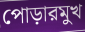
পোড়ারমুখ